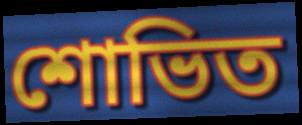
শোভিত